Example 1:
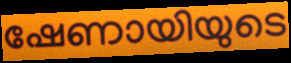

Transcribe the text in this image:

ഷേണായിയുടെ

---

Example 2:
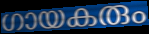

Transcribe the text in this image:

ഗായകരും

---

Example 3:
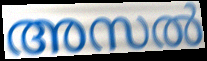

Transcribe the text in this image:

അസൽ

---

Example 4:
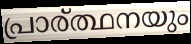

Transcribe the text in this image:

പ്രാര്ത്ഥനയും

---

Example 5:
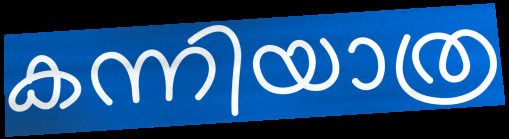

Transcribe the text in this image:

കന്നിയാത്ര